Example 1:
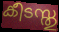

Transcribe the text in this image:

കീടസ്തു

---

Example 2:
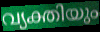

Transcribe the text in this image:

വ്യക്തിയും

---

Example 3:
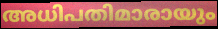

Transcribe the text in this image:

അധിപതിമാരായും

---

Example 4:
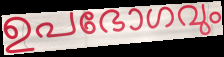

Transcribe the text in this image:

ഉപഭോഗവും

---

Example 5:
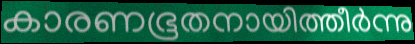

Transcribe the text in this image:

കാരണഭൂതനായിത്തീർന്നു